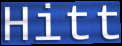
Hitt